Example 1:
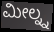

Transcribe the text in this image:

ಮೀಲ್ನ್ನ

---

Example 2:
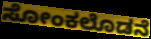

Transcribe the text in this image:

ಸೋಂಕಲೊಡನೆ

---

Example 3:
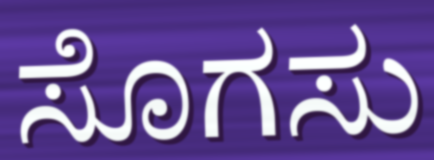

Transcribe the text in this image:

ಸೊಗಸು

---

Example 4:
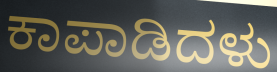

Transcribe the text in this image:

ಕಾಪಾಡಿದಳು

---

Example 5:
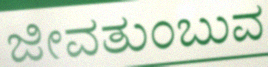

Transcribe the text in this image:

ಜೀವತುಂಬುವ